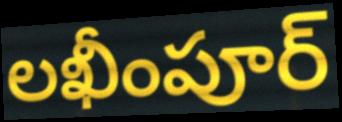
లఖీంపూర్